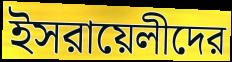
ইসরায়েলীদের